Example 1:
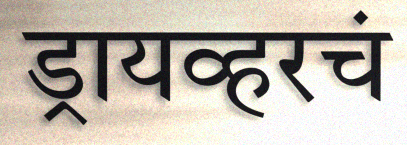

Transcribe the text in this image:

ड्रायव्हरचं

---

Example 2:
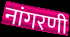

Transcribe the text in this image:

नांगरणी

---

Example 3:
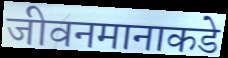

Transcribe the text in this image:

जीवनमानाकडे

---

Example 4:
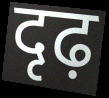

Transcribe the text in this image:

दृढ़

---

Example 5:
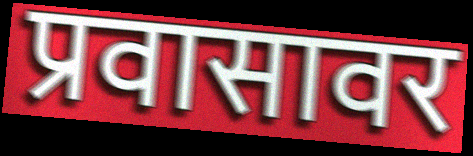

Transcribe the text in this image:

प्रवासावर